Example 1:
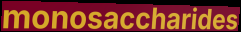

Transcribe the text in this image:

monosaccharides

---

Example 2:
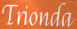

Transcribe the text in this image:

Trionda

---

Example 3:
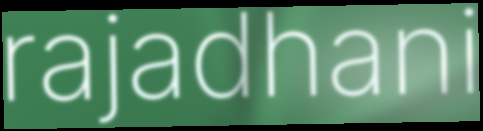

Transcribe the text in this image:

rajadhani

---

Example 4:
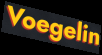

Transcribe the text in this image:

Voegelin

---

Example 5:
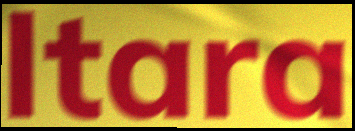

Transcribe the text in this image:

Itara